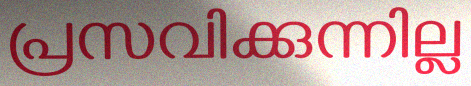
പ്രസവിക്കുന്നില്ല